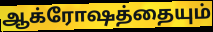
ஆக்ரோஷத்தையும்